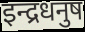
इन्‍द्रधनुष